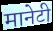
मानेटी